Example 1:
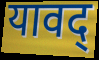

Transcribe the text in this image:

यावद्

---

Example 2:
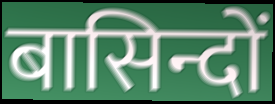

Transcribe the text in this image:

बासिन्दों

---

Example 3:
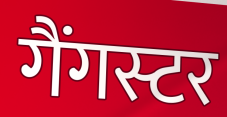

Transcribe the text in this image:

गैंगस्‍टर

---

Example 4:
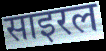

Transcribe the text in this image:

साइरल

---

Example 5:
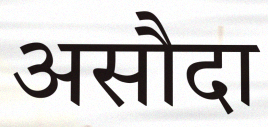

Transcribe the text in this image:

असौदा